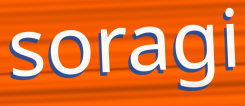
soragi